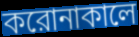
করোনাকালে